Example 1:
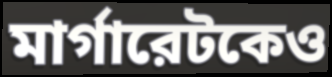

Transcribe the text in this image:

মার্গারেটকেও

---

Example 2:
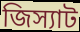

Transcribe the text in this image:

জিস্যাট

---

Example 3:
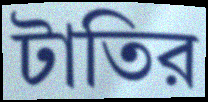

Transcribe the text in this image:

টাতির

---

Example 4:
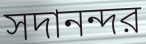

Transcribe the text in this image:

সদানন্দর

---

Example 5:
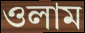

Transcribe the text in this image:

ওলাম